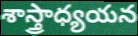
శాస్త్రాధ్యయన